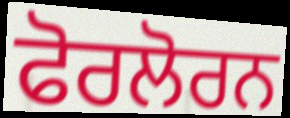
ਫੋਰਲੋਰਨ